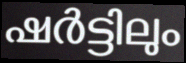
ഷർട്ടിലും